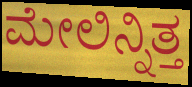
ಮೇಲಿನ್ನಿತ್ತ